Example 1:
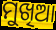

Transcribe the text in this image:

ମୁଖିଆ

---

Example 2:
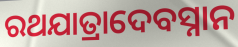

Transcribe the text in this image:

ରଥଯାତ୍ରାଦେବସ୍ନାନ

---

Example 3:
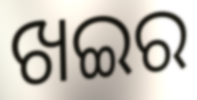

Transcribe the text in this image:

ଖଇର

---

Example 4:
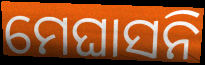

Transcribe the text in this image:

ମେଘାସନି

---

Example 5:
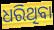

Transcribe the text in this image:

ଧରିଥିବା